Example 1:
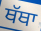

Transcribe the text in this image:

ਥੱਥਾ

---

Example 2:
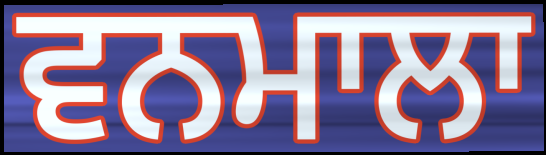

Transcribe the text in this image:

ਵਨਮਾਲਾ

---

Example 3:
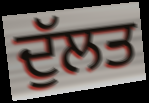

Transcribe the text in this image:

ਦੁੱਲਤ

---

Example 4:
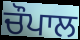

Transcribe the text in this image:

ਚੌਪਾਲ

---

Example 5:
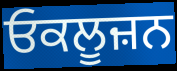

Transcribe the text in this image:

ਓਕਲੂਜ਼ਨ